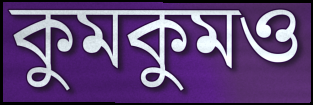
কুমকুমও